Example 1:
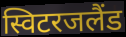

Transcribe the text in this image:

स्विटरजलैंड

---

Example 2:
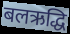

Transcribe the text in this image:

बलऋद्धि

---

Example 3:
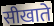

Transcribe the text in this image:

सीखाते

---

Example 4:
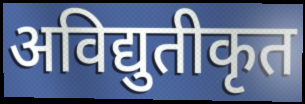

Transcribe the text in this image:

अविद्युतीकृत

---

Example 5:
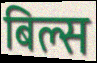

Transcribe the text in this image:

बिल्स